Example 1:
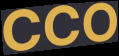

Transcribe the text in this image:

CCO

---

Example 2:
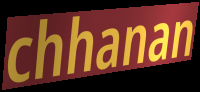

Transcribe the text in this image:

chhanan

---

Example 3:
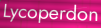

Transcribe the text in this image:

Lycoperdon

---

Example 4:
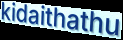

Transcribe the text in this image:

kidaithathu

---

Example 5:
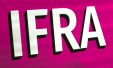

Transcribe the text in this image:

IFRA